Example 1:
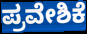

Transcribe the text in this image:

ಪ್ರವೇಶಿಕೆ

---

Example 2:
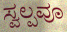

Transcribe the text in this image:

ಸ್ವಲ್ಪವೂ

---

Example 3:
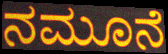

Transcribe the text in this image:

ನಮೂನೆ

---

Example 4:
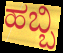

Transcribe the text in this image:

ಹಬ್ಬಿ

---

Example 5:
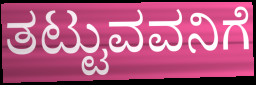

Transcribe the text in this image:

ತಟ್ಟುವವನಿಗೆ